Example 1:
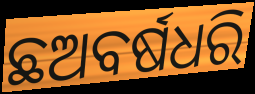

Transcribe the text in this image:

ଛଅବର୍ଷଧରି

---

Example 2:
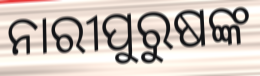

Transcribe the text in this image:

ନାରୀପୁରୁଷଙ୍କ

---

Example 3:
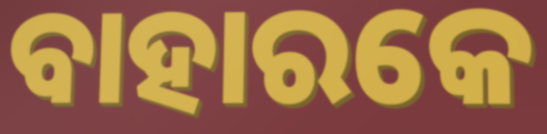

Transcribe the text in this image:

ବାହାରକେ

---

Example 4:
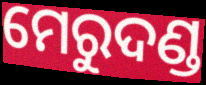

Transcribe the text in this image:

ମେରୁଦଣ୍ଡ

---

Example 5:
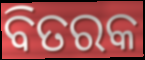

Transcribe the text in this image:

ବିତରକ